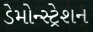
ડેમોન્સ્ટ્રેશન